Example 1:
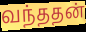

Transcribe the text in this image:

வந்ததன்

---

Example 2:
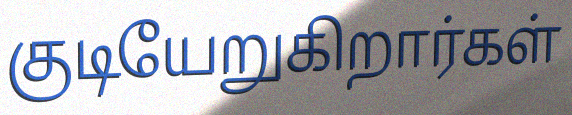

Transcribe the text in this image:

குடியேறுகிறார்கள்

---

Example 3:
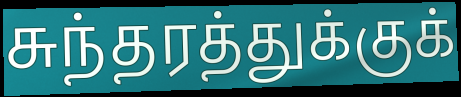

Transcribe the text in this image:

சுந்தரத்துக்குக்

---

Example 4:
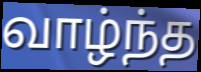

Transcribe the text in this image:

வாழ்ந்த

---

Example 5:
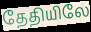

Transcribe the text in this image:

தேதியிலே